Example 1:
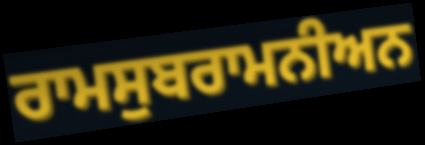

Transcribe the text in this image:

ਰਾਮਸੁਬਰਾਮਨੀਅਨ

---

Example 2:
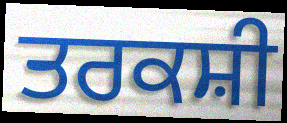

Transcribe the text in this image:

ਤਰਕਸ਼ੀ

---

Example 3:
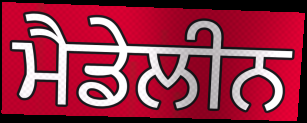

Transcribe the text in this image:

ਮੈਡੇਲੀਨ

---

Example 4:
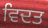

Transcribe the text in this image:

ਵਿਦਤ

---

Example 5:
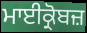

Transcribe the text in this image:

ਮਾਈਕ੍ਰੋਬਜ਼